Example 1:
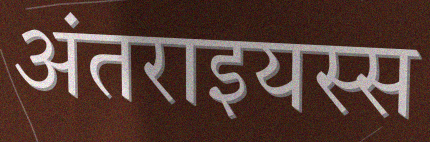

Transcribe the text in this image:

अंतराइयस्स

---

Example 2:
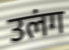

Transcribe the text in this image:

उलंग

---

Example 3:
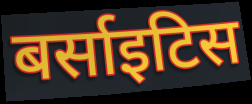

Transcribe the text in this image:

बर्साइटिस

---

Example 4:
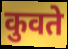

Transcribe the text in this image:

कुवते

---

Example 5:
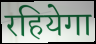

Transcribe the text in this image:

रहियेगा